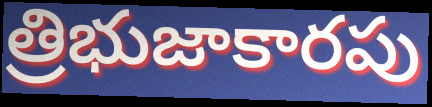
త్రిభుజాకారపు